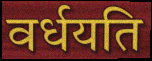
वर्धयति